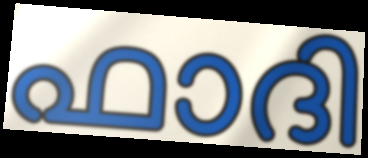
ഫാദി